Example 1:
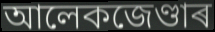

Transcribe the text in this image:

আলেকজেণ্ডাৰ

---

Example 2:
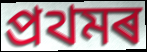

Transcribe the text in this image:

প্ৰথমৰ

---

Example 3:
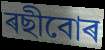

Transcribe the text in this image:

ৰছীবোৰ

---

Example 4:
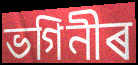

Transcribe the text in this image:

ভগিনীৰ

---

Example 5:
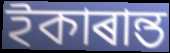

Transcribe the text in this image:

ইকাৰান্ত